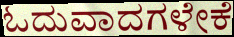
ಓದುವಾದಗಳೇಕೆ